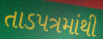
તાડપત્રમાંથી